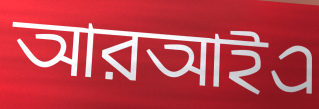
আরআইএ